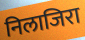
निलाजिरा